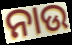
ନାଉ